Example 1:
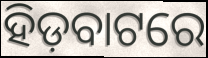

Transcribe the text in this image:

ହିଡ଼ବାଟରେ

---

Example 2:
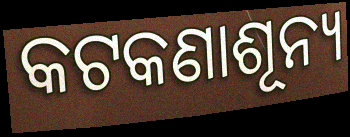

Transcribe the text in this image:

କଟକଣାଶୂନ୍ୟ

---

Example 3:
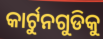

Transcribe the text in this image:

କାର୍ଟୁନଗୁଡିକୁ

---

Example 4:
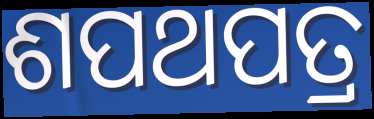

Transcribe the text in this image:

ଶପଥପତ୍ର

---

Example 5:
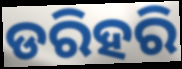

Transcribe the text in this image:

ଡରିହରି